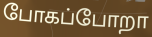
போகப்போறா